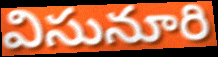
విసునూరి